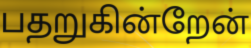
பதறுகின்றேன்